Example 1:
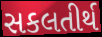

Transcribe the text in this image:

સકલતીર્થ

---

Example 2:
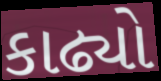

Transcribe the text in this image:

કાઢ્યો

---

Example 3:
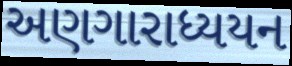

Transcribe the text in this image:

અણગારાધ્યયન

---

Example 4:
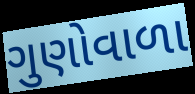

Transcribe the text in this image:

ગુણોવાળા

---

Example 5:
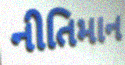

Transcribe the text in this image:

નીતિમાન